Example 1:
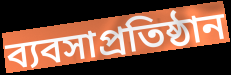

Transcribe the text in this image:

ব্যবসাপ্রতিষ্ঠান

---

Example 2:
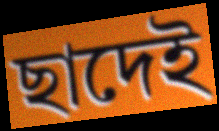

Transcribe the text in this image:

ছাদেই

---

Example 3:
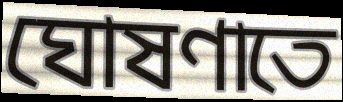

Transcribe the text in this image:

ঘোষণাতে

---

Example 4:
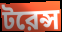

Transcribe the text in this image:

টরেন্স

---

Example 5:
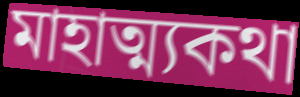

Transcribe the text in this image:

মাহাত্ম্যকথা